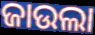
ଜାଉଲା